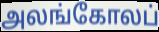
அலங்கோலப்